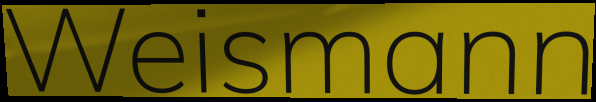
Weismann